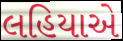
લહિયાએ